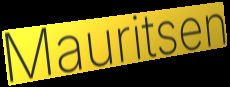
Mauritsen